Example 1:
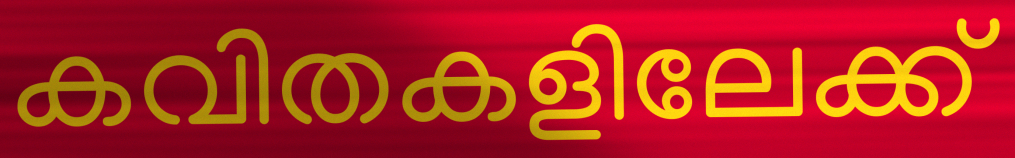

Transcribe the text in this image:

കവിതകളിലേക്ക്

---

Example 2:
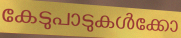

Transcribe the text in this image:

കേടുപാടുകൾക്കോ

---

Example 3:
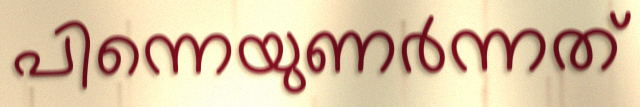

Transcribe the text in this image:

പിന്നെയുണർന്നത്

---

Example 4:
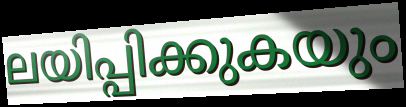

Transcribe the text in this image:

ലയിപ്പിക്കുകയും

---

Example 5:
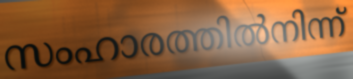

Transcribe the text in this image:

സംഹാരത്തിൽനിന്ന്